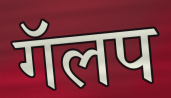
गॅलप